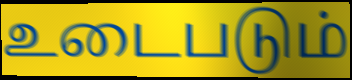
உடைபடும்